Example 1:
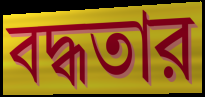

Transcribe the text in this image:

বদ্ধতার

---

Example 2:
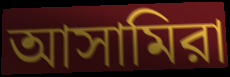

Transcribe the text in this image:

আসামিরা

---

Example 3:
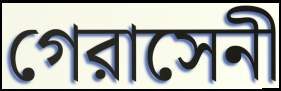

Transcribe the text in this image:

গেরাসেনী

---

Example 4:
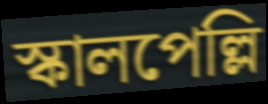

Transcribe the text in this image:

স্কালপেল্লি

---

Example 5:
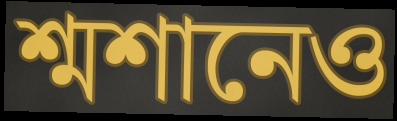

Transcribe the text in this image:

শ্মশানেও